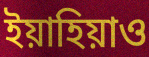
ইয়াহিয়াও